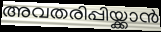
അവതരിപ്പിയ്ക്കാൻ